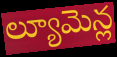
ల్యూమెన్ల